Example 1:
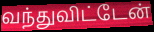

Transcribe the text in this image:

வந்துவிட்டேன்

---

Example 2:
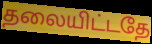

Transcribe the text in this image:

தலையிட்டதே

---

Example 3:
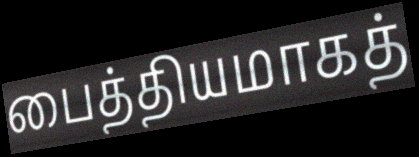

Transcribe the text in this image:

பைத்தியமாகத்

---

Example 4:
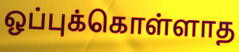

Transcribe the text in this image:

ஒப்புக்கொள்ளாத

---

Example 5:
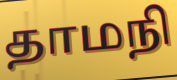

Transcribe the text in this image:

தாமநி